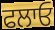
ਫਲਾਓ